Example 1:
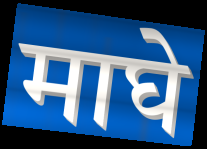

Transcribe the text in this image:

माघे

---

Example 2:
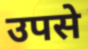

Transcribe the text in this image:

उपसे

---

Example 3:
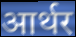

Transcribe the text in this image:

आर्थर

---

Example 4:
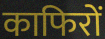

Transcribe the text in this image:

काफिरों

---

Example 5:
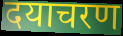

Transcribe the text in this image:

दयाचरण